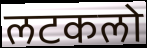
लटकलो